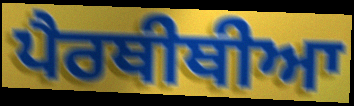
ਪੈਰਥੀਥੀਆ